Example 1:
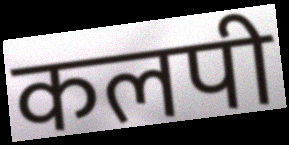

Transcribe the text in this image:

कलपी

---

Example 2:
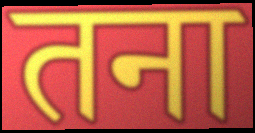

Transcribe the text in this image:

तना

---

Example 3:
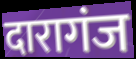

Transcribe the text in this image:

दारागंज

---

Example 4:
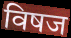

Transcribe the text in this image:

विषज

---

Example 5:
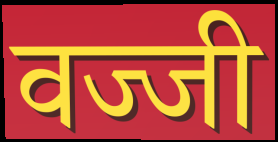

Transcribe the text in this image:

वज्जी